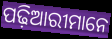
ପଢ଼ିଆରୀମାନେ